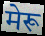
मेरू